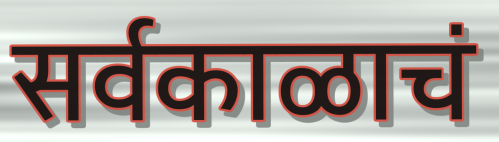
सर्वकाळाचं